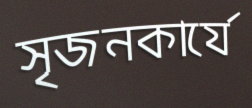
সৃজনকার্যে